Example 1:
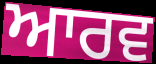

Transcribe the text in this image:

ਆਰਵ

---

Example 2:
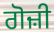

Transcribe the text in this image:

ਗੋਜ਼ੀ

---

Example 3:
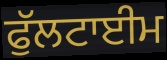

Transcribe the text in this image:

ਫੁੱਲਟਾਈਮ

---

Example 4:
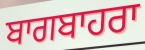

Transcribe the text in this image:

ਬਾਗਬਾਹਰਾ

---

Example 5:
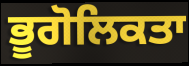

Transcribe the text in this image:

ਭੂਗੋਲਿਕਤਾ